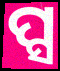
ପ୍ସ